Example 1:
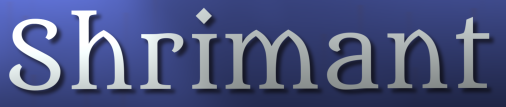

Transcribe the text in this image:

Shrimant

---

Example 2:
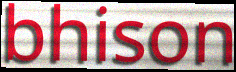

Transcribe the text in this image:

bhison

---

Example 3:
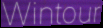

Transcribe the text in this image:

Wintour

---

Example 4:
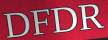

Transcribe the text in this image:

DFDR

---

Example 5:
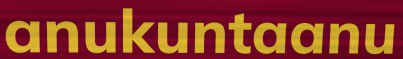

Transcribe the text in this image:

anukuntaanu